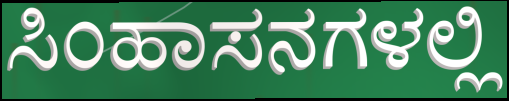
ಸಿಂಹಾಸನಗಳಲ್ಲಿ